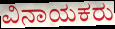
ವಿನಾಯಕರು